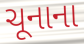
ચૂનાના